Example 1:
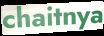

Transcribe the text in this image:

chaitnya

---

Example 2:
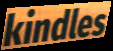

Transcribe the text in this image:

kindles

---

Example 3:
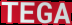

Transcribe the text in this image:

TEGA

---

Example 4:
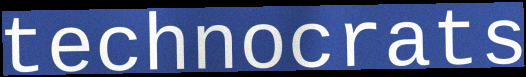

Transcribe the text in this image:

technocrats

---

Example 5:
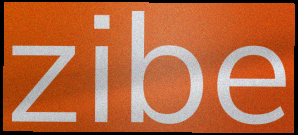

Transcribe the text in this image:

zibe